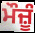
ਮੌਜ਼ੂੰ